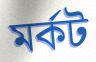
মর্কট